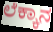
ಲೆಕ್ಕಾನ